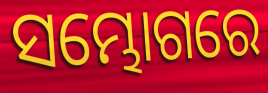
ସମ୍ଭୋଗରେ